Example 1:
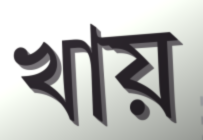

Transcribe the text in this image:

খায়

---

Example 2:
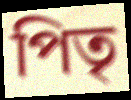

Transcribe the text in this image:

পিতৃ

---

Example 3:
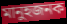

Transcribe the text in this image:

মানুহজনক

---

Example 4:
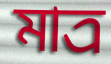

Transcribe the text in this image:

মাত্ৰ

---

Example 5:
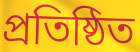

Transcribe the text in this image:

প্ৰতিষ্ঠিত